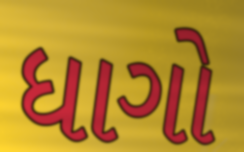
ધાગો